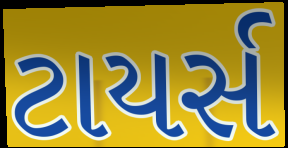
ટાયર્સ